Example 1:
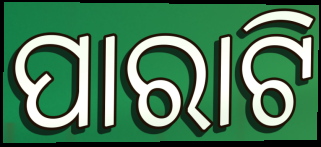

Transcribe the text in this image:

ପାରାଟି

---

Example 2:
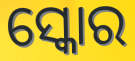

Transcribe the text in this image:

ସ୍କୋର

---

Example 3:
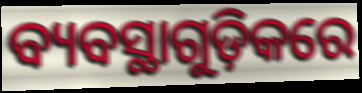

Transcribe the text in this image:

ବ୍ୟବସ୍ଥାଗୁଡ଼ିକରେ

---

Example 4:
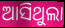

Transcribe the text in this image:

ଆସିଥୁଲା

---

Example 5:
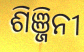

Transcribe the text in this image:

ଶିଞ୍ଜିନୀ